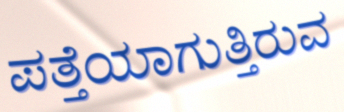
ಪತ್ತೆಯಾಗುತ್ತಿರುವ